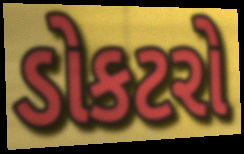
ડોકટરો